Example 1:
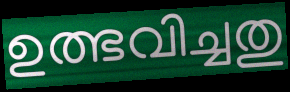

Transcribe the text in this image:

ഉത്ഭവിച്ചതു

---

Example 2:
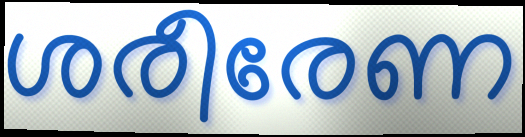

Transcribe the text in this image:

ശരീരേണ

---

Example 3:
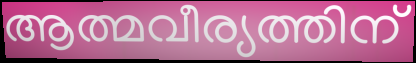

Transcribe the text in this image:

ആത്മവീര്യത്തിന്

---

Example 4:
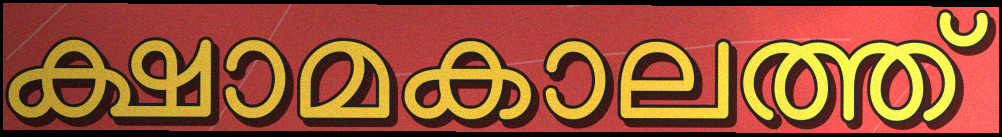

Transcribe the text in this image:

ക്ഷാമകാലത്ത്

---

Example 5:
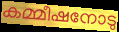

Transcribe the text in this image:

കമ്മീഷനോടു